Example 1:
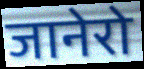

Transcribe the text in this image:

जानेरो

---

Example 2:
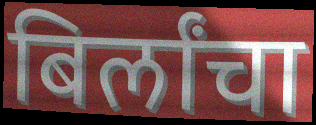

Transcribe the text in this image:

बिर्लांचा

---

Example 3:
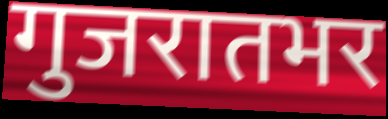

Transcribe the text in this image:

गुजरातभर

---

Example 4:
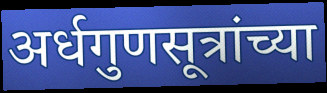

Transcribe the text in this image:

अर्धगुणसूत्रांच्या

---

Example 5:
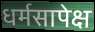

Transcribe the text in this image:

धर्मसापेक्ष